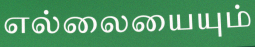
எல்லையையும்